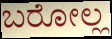
ಬರೋಲ್ಲ